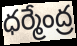
ధర్మేంద్ర